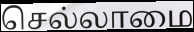
செல்லாமை